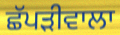
ਛੱਪੜੀਵਾਲਾ